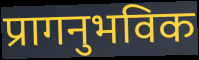
प्रागनुभविक